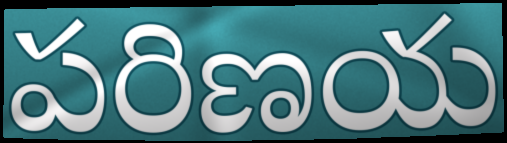
పరిణయ